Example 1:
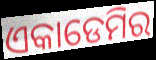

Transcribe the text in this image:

ଏକାଡେମିର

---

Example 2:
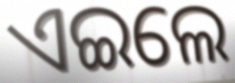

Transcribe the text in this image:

ଏଇଲେ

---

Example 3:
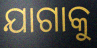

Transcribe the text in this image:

ଯାଗାକୁ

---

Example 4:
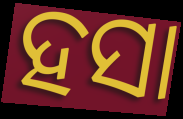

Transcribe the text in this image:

ହସା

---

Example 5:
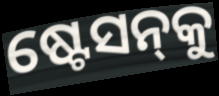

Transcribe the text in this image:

ଷ୍ଟେସନ୍‍କୁ